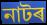
নাটৰ